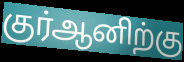
குர்ஆனிற்கு